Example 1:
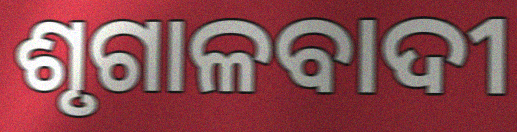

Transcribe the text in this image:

ଶୃଗାଳବାଦୀ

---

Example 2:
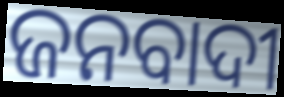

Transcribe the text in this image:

ଜନବାଦୀ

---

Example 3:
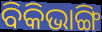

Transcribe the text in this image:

ବିକିଭାଙ୍ଗି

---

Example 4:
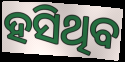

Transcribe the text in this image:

ହସିଥିବ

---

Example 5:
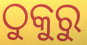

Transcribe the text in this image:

ଠୁକୁରୁ